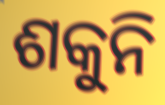
ଶକୁନି